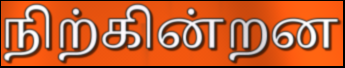
நிற்கின்றன